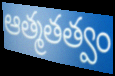
ఆత్మతత్వం